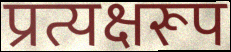
प्रत्यक्षरूप